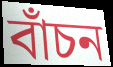
বাঁচন